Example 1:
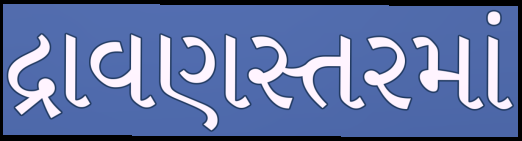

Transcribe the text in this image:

દ્રાવણસ્તરમાં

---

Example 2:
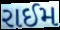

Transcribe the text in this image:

રાઈમ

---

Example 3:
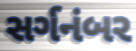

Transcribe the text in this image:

સર્ગનંબર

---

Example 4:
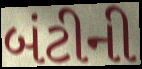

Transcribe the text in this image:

બંટીની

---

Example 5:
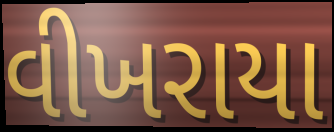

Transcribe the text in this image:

વીખરાયા